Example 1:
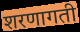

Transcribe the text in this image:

शरणागती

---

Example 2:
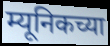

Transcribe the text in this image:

म्यूनिकच्या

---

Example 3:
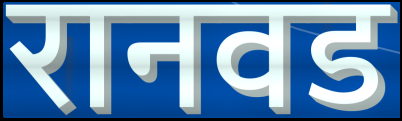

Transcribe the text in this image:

रानवड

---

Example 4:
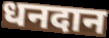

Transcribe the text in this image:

धनदान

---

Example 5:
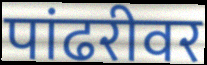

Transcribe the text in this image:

पांढरीवर